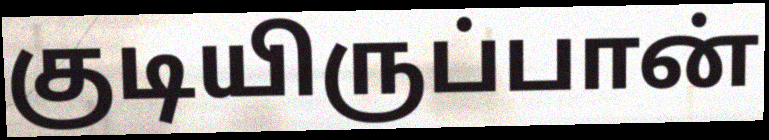
குடியிருப்பான்